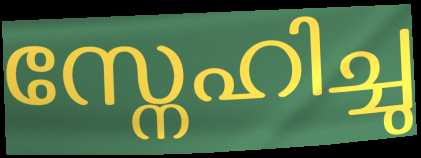
സ്നേഹിച്ചു